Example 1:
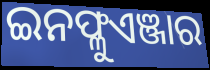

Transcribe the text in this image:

ଇନଫ୍ଳୁଏଞ୍ଜାର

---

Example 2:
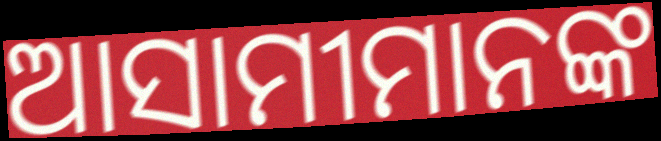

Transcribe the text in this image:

ଆସାମୀମାନଙ୍କ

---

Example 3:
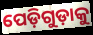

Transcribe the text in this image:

ପେଡ଼ିଗୁଡ଼ାକୁ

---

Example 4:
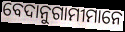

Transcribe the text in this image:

ବେଦାନୁଗାମୀମାନେ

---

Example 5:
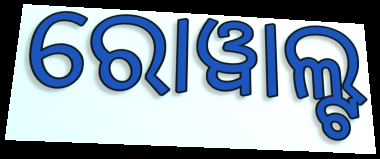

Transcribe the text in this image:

ରୋୱାଲ୍ଟ